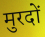
मुरदों